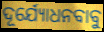
ଦୂର୍ଯ୍ୟୋଧନବାବୁ